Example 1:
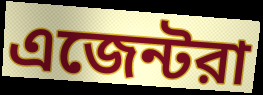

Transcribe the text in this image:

এজেন্টরা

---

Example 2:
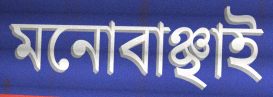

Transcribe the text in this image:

মনোবাঞ্ছাই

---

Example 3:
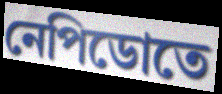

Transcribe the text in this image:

নেপিডোতে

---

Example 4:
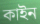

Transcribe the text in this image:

কাইন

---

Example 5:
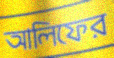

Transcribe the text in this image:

আলিফের